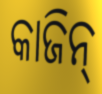
କାଜିନ୍